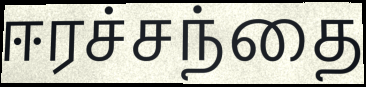
ஈரச்சந்தை